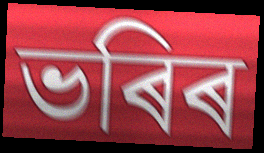
ভৰিৰ